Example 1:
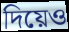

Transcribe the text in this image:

দিয়েও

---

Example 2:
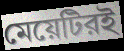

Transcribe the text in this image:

মেয়েটিরই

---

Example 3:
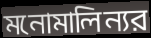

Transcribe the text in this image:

মনোমালিন্যর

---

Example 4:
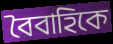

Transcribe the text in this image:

বৈবাহিকে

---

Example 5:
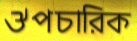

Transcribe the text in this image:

ঔপচারিক